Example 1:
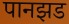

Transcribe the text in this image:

पानझड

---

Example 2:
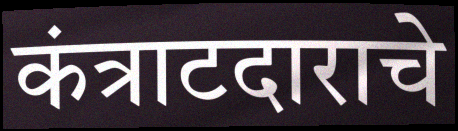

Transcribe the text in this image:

कंत्राटदाराचे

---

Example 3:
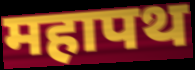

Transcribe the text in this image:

महापथ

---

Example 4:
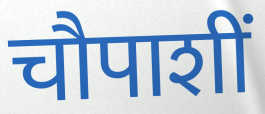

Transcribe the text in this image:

चौपाशीं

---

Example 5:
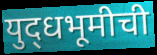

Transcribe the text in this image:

युद्धभूमीची